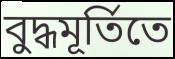
বুদ্ধমূর্তিতে